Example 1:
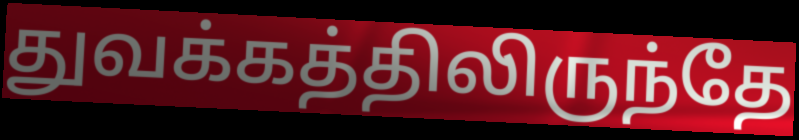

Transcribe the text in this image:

துவக்கத்திலிருந்தே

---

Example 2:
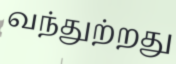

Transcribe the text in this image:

வந்துற்றது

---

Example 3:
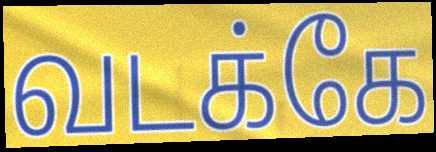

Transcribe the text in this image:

வடக்கே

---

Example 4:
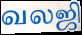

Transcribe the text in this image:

வலஜி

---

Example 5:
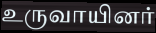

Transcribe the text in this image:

உருவாயினர்